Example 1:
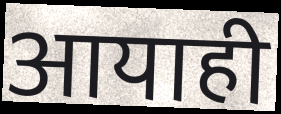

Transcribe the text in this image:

आयाही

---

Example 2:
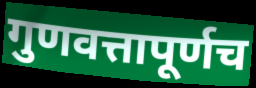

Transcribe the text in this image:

गुणवत्तापूर्णच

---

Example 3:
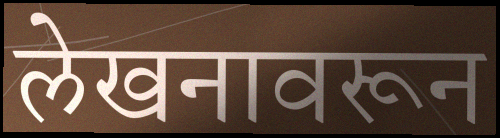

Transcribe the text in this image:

लेखनावरून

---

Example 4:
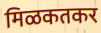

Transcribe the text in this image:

मिळकतकर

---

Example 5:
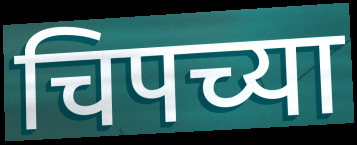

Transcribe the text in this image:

चिपच्या